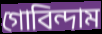
গোবিন্দাম